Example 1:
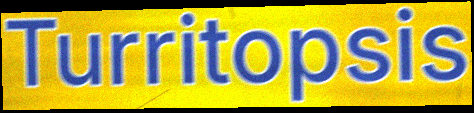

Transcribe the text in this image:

Turritopsis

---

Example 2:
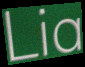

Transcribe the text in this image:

Lia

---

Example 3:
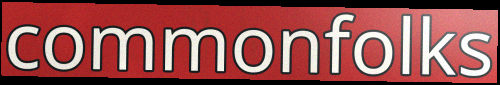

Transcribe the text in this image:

commonfolks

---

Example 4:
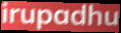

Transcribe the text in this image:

irupadhu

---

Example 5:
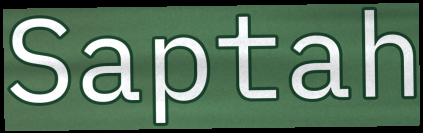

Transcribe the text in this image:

Saptah